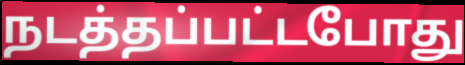
நடத்தப்பட்டபோது